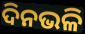
ଦିନଭଳି